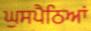
ਘੁਸਪੈਠਿਆਂ